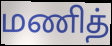
மணித்